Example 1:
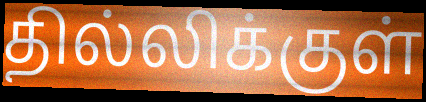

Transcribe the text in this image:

தில்லிக்குள்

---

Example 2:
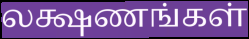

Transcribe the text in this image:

லக்ஷணங்கள்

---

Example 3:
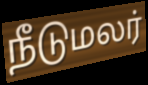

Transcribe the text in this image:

நீடுமலர்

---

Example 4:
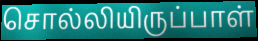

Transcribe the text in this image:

சொல்லியிருப்பாள்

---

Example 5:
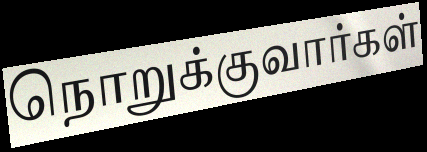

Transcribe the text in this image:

நொறுக்குவார்கள்